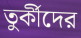
তুর্কীদের